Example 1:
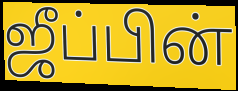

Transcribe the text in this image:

ஜீப்பின்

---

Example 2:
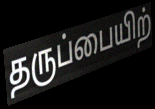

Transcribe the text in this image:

தருப்பையிற்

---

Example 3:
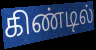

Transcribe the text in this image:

கிண்டில்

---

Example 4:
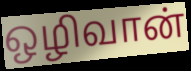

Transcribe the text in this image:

ஒழிவான்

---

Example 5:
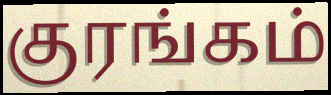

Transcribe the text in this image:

குரங்கம்